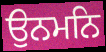
ਉਨਮਨਿ